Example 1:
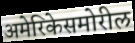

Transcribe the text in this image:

अमेरिकेसमोरील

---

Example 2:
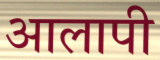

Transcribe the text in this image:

आलापी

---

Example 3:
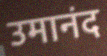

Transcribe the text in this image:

उमानंद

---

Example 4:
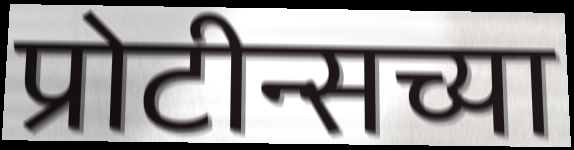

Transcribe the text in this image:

प्रोटीन्सच्या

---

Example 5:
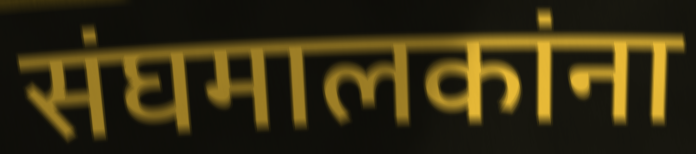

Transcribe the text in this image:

संघमालकांना